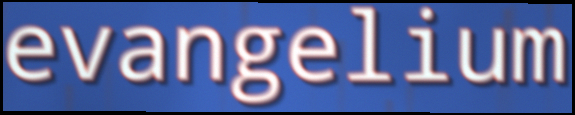
evangelium